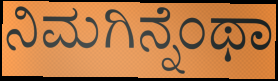
ನಿಮಗಿನ್ನೆಂಥಾ